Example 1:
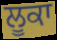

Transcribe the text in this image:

ਲੂਕਾ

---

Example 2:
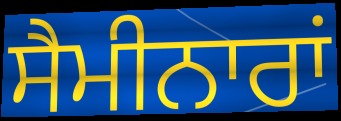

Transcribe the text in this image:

ਸੈਮੀਨਾਰਾਂ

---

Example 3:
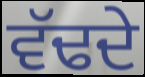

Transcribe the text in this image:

ਵੱਢਦੇ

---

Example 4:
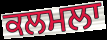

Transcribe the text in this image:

ਕਲਮਲਾ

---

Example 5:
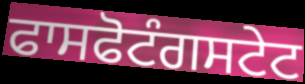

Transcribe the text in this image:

ਫਾਸਫੋਟੰਗਸਟੇਟ